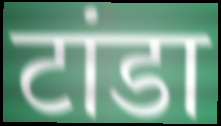
टांडा